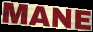
MANE